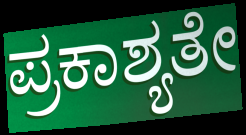
ಪ್ರಕಾಶ್ಯತೇ